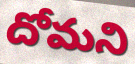
దోమని